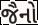
જૈનો